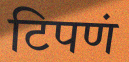
टिपणं